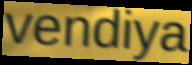
vendiya